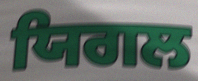
ਯਿਗਲ